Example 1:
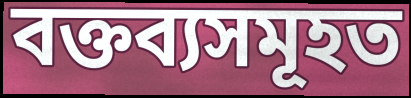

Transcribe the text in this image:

বক্তব্যসমূহত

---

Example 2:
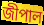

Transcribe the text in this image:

জীপাল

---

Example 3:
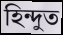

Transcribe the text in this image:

হিন্দুত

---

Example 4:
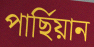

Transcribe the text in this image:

পাৰ্ছিয়ান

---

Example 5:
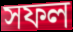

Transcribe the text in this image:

সফল